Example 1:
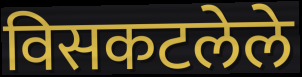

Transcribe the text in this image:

विसकटलेले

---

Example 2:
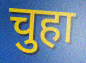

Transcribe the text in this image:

चुहा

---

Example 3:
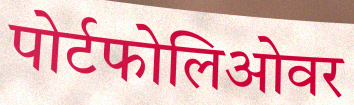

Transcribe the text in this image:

पोर्टफोलिओवर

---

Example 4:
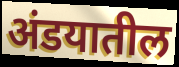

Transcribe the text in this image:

अंडयातील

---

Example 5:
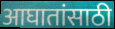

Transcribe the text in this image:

आघातांसाठी